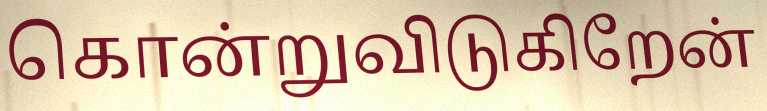
கொன்றுவிடுகிறேன்